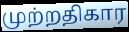
முற்றதிகார